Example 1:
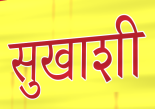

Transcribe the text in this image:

सुखाशी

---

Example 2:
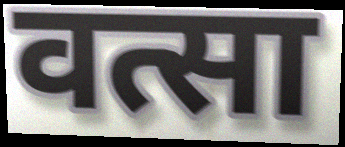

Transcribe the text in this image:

वत्सा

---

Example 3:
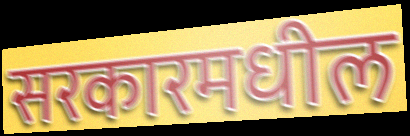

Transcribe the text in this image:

सरकारमधील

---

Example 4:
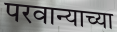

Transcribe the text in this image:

परवान्याच्या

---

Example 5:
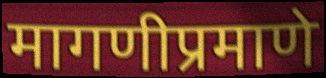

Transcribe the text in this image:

मागणीप्रमाणे